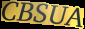
CBSUA